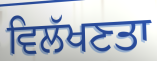
ਵਿਲੱਖਣਤਾ